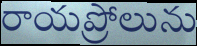
రాయప్రోలును